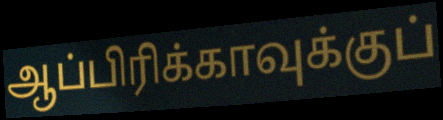
ஆப்பிரிக்காவுக்குப்